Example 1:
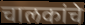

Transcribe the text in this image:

चालकांचे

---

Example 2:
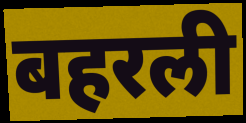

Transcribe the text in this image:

बहरली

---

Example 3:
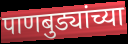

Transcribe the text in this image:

पाणबुड्यांच्या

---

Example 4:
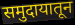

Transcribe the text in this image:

समुदायातून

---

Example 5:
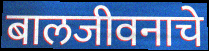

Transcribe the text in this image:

बालजीवनाचे